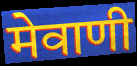
मेवाणी